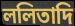
ললিতাদি